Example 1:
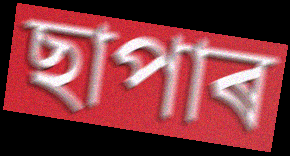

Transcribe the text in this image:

ছাপাৰ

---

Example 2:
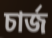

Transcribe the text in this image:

চাৰ্জ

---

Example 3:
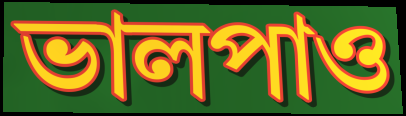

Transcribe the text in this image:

ভালপাও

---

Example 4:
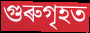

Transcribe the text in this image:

গুৰুগৃহত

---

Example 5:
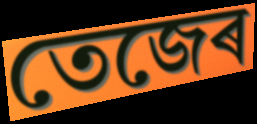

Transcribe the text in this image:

তেজেৰ